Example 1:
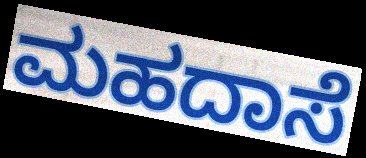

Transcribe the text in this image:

ಮಹದಾಸೆ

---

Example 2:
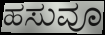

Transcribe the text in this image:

ಹಸುವೂ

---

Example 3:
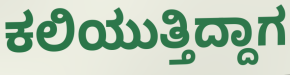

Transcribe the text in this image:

ಕಲಿಯುತ್ತಿದ್ದಾಗ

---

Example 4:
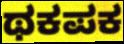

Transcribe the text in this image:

ಥಕಪಕ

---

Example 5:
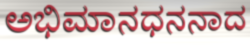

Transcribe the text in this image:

ಅಭಿಮಾನಧನನಾದ